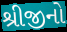
શ્રીજીનો